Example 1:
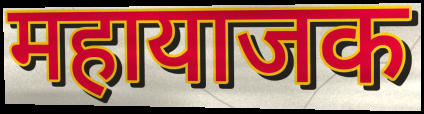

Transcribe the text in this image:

महायाजक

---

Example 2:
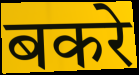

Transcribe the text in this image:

बकरे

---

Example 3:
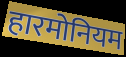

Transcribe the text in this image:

हारमोनियम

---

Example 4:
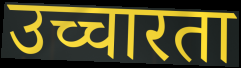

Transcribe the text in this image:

उच्चारता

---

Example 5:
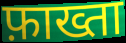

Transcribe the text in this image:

फ़ाख्ता